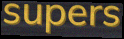
supers